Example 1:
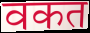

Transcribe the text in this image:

वकत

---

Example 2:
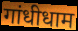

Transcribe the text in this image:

गांधीधाम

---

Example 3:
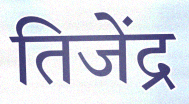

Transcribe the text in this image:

तिजेंद्र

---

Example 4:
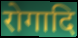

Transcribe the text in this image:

रोगादि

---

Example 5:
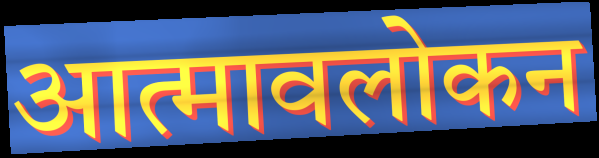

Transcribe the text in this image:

आत्‍मावलोकन